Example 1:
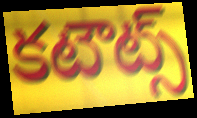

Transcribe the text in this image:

కటౌట్స్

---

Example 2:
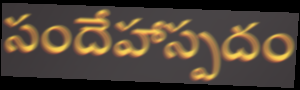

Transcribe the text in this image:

సందేహాస్పదం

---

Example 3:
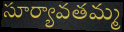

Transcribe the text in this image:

సూర్యావతమ్మ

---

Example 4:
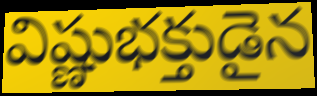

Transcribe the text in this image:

విష్ణుభక్తుడైన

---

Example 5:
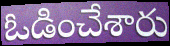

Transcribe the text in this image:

ఓడించేశారు